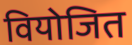
वियोजित